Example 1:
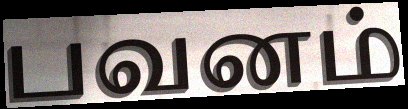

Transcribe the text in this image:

பவனம்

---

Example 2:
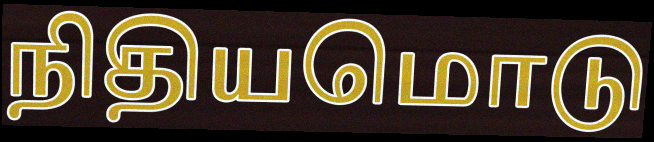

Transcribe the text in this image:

நிதியமொடு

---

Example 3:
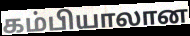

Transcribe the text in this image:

கம்பியாலான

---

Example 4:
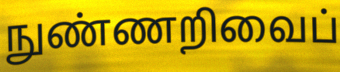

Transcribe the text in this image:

நுண்ணறிவைப்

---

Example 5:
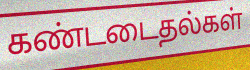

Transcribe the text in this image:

கண்டடைதல்கள்